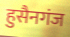
हुसैनगंज